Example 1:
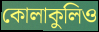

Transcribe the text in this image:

কোলাকুলিও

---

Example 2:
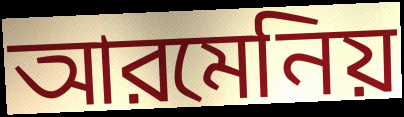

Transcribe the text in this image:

আরমেনিয়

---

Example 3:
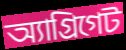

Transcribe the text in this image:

অ্যাগ্রিগেট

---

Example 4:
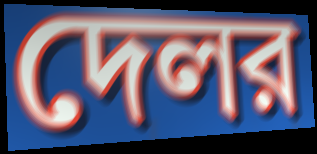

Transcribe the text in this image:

দেলর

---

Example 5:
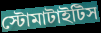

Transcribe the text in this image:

স্টোমাটাইটিস